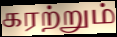
கரற்றும்